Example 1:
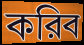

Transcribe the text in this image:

করিব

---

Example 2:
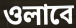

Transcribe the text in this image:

ওলাবে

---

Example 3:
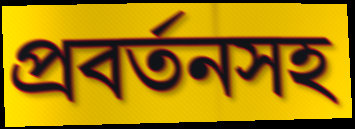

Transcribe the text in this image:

প্রবর্তনসহ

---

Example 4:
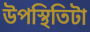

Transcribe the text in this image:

উপস্থিতিটা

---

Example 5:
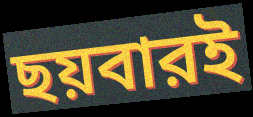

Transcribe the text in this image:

ছয়বারই